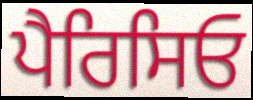
ਪੈਰਿਸਿਓ